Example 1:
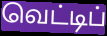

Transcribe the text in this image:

வெட்டிப்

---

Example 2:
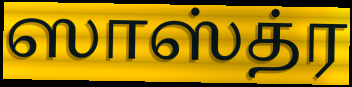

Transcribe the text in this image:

ஸாஸ்த்ர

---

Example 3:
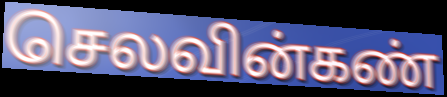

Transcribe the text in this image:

செலவின்கண்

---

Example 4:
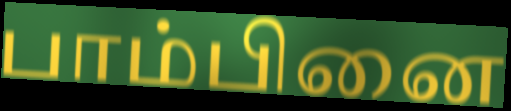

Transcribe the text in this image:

பாம்பினை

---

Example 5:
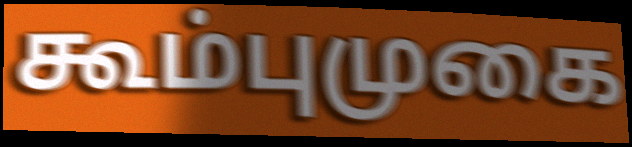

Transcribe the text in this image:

கூம்புமுகை